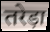
तरेड़ा